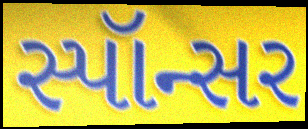
સ્પૉન્સર